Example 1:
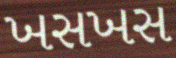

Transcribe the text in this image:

ખસખસ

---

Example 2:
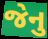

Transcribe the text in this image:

જેનુ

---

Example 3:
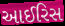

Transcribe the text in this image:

આઈરિસ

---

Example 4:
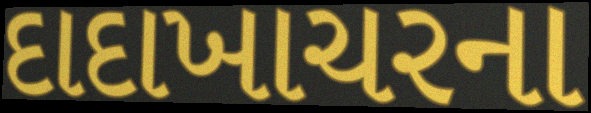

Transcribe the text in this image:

દાદાખાચરના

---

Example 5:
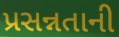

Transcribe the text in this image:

પ્રસન્નતાની